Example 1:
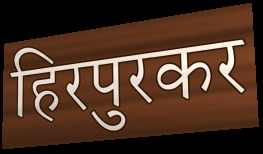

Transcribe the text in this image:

हिरपुरकर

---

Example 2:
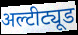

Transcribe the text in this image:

अल्टीट्यूड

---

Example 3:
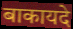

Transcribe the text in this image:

बाकायदे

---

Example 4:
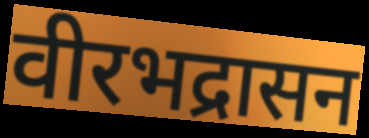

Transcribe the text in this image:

वीरभद्रासन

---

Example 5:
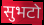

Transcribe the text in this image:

सुभटो